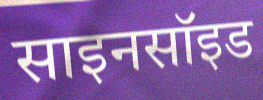
साइनसॉइड